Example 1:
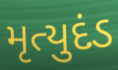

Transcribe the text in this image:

મૃત્યુદંડ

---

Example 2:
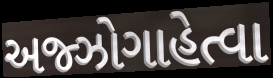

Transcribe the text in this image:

અજ્ઝોગાહેત્વા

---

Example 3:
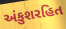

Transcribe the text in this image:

અંકુશરહિત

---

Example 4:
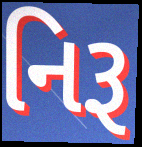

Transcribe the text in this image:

નિરૂ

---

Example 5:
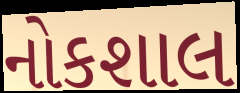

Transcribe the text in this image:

નોકશાલ